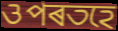
ওপৰতহে